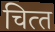
चित्‍त